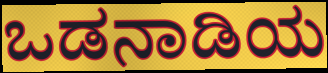
ಒಡನಾಡಿಯ